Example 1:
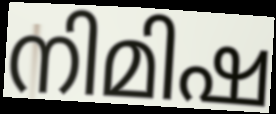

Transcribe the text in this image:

നിമിഷ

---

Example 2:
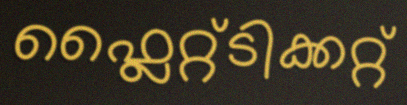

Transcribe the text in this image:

ഫ്ലൈറ്റ്ടിക്കറ്റ്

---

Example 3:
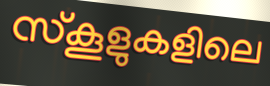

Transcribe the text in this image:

സ്കൂളുകളിലെ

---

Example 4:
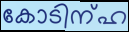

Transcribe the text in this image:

കോടിന്ഹ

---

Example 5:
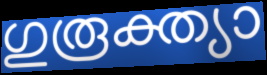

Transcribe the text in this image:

ഗുരൂക്ത്യാ